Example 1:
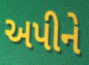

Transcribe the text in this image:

અપીને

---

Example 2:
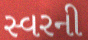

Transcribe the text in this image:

સ્વરની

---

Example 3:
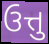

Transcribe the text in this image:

ઉત્તુ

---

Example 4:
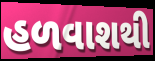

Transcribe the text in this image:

હળવાશથી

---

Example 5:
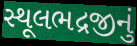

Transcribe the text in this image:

સ્થૂલભદ્રજીનું